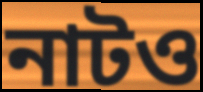
নাটও